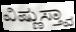
ವಿಷ್ಣುಸ್ತ್ವಾ